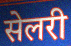
सेलरी